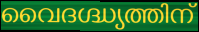
വൈദഗ്ദ്ധ്യത്തിന്